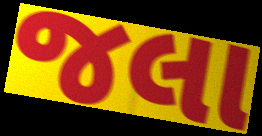
જલા